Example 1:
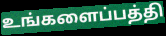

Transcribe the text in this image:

உங்களைப்பத்தி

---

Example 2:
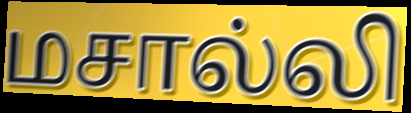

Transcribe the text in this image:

மசால்லி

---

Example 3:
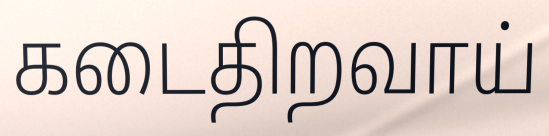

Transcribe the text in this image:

கடைதிறவாய்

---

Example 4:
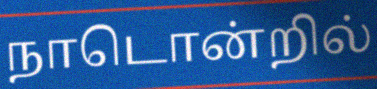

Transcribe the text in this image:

நாடொன்றில்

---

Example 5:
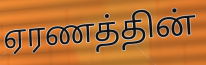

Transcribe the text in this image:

ஏரணத்தின்